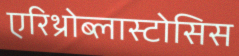
एरिथ्रोब्लास्टोसिस